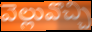
వెల్లువొచ్చి